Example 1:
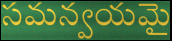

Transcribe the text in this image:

సమన్వయమై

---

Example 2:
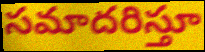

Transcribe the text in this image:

సమాదరిస్తూ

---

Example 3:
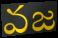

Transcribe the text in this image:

వజ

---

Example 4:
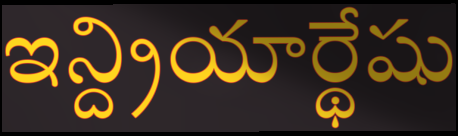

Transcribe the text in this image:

ఇన్ద్రియార్థేషు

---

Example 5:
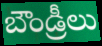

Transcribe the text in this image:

బౌండ్రీలు